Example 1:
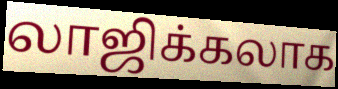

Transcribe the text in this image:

லாஜிக்கலாக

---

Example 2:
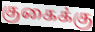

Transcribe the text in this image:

குகைக்கு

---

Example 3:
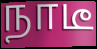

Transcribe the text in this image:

நாடீ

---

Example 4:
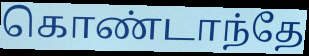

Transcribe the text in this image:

கொண்டாந்தே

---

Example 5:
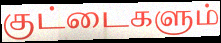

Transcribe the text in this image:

குட்டைகளும்